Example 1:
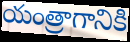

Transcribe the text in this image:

యంత్రాగానికి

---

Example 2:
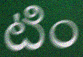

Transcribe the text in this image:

టిం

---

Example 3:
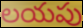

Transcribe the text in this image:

లయపు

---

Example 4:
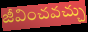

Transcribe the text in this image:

జీవించవచ్చు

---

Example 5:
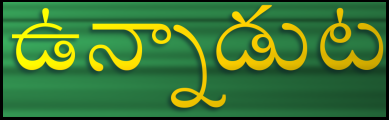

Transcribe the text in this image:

ఉన్నాడుట